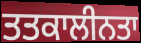
ਤਤਕਾਲੀਨਤਾ